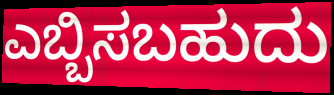
ಎಬ್ಬಿಸಬಹುದು